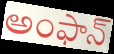
అంఫాన్